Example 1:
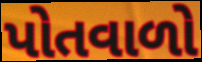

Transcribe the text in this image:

પોતવાળો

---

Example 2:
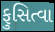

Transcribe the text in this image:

ફુસિત્વા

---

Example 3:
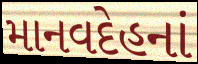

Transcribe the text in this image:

માનવદેહનાં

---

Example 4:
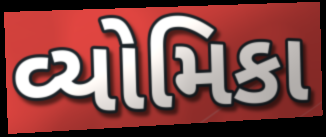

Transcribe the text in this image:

વ્યોમિકા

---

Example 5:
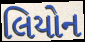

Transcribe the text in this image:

લિયોન